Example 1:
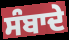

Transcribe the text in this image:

ਸੰਬਾਦੇ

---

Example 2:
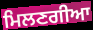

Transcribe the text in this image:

ਮਿਲਣਗੀਆ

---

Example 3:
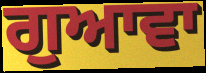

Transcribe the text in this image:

ਗੁਆਵਾ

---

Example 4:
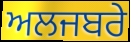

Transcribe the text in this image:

ਅਲਜਬਰੇ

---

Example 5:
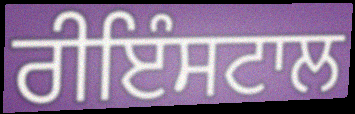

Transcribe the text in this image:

ਰੀਇੰਸਟਾਲ